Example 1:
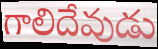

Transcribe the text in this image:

గాలిదేవుడు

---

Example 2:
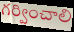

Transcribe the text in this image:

గర్వించాలి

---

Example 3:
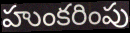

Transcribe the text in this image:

హుంకరింపు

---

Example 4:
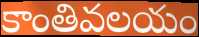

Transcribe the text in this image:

కాంతివలయం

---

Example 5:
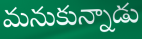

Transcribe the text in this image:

మనుకున్నాడు